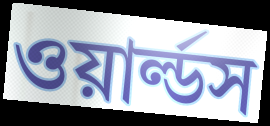
ওয়ার্ল্ডস